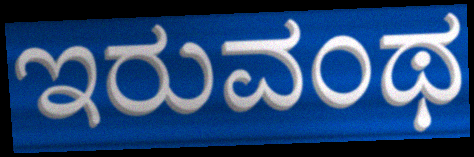
ಇರುವಂಥ